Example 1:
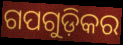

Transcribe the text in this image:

ଗପଗୁଡ଼ିକର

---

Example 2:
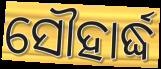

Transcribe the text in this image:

ସୌହାର୍ଦ୍ଧ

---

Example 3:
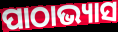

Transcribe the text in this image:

ପାଠାଭ୍ୟାସ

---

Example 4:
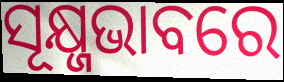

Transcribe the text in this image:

ସୂକ୍ଷ୍ଜଭାବରେ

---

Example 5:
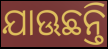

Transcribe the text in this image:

ଯାଊଛନ୍ତି